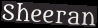
Sheeran